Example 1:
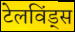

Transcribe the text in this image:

टेलविंड्स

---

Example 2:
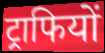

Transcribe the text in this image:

ट्राफियों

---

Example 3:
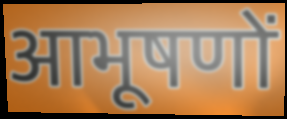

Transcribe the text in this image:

आभूषणों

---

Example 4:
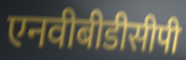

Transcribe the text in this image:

एनवीबीडीसीपी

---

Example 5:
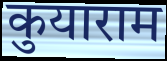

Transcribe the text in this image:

कुयाराम